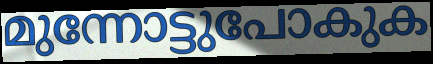
മുന്നോട്ടുപോകുക